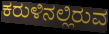
ಕರುಳಿನಲ್ಲಿರುವ